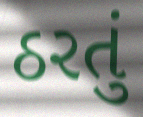
ઠરતું